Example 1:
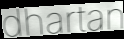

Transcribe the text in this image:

dhartan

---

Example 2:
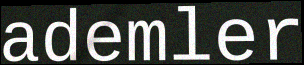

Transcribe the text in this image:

ademler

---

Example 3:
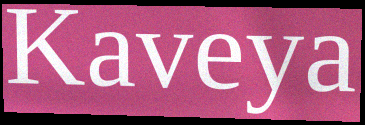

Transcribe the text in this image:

Kaveya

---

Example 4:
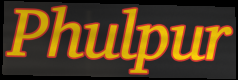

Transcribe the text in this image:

Phulpur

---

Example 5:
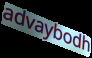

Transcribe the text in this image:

advaybodh